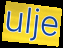
ulje